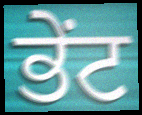
ਭੇਂਟ